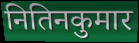
नितिनकुमार